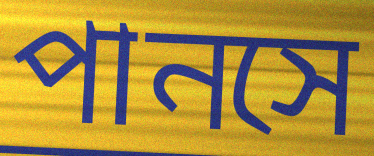
পানসে